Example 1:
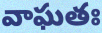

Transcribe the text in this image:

వాఘతః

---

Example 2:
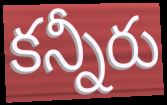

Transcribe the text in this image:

కన్నీరు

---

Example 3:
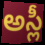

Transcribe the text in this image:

అస్లీ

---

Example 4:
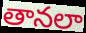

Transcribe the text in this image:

తానలా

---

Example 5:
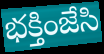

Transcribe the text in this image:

భక్తింజేసి